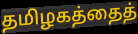
தமிழகத்தைத்